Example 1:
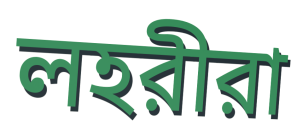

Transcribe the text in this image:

লহরীরা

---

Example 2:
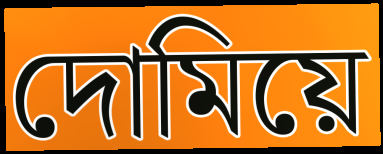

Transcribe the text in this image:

দোমিয়ে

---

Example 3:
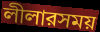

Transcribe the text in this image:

লীলারসময়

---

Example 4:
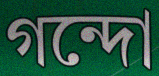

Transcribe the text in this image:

গন্দো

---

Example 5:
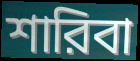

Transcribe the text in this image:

শারিবা